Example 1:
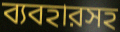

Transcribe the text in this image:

ব্যবহারসহ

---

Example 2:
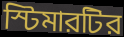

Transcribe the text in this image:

স্টিমারটির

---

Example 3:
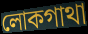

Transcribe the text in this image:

লোকগাথা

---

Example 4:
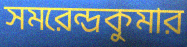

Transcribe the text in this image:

সমরেন্দ্রকুমার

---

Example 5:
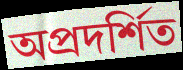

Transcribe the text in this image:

অপ্রদর্শিত